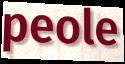
peole